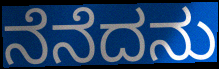
ನೆನೆದನು